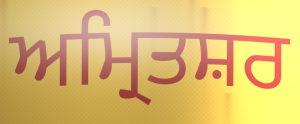
ਅਮ੍ਰਿਤਸ਼ਰ